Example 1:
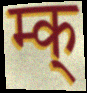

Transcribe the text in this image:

म्क्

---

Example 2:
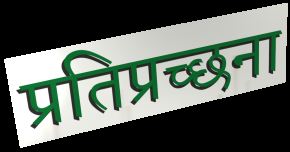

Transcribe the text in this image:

प्रतिप्रच्छना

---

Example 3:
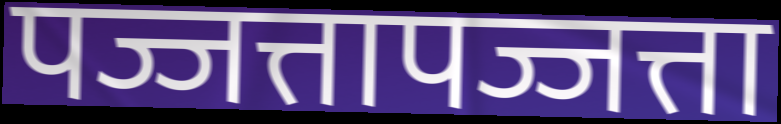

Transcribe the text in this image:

पज्जत्तापज्जत्ता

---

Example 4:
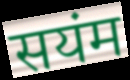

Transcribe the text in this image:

सयंम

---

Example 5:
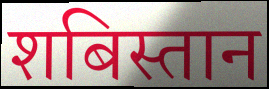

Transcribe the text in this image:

शबिस्तान